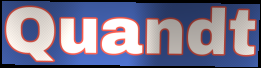
Quandt